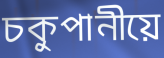
চকুপানীয়ে